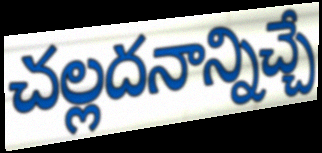
చల్లదనాన్నిచ్చే